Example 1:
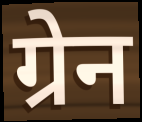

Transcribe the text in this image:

ग्रेन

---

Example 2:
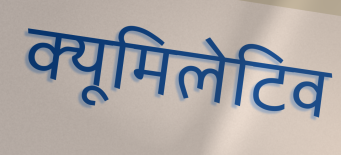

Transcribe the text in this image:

क्यूमिलेटिव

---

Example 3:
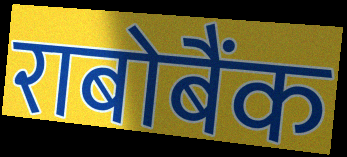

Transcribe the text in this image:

राबोबैंक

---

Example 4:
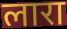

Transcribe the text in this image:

लारा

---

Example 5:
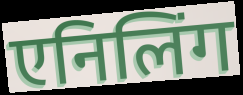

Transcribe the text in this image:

एनिलिंग